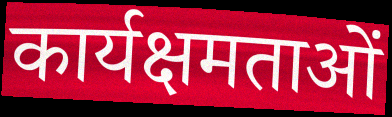
कार्यक्षमताओं